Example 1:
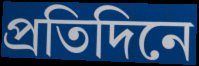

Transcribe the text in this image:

প্ৰতিদিনে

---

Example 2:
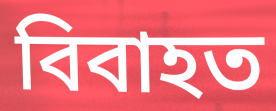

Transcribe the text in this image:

বিবাহত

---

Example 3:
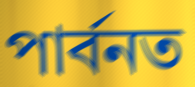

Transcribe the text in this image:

পাৰ্বনত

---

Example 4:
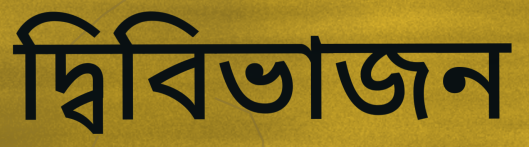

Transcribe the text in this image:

দ্বিবিভাজন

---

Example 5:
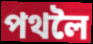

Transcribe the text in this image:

পথলৈ